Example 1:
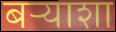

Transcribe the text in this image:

बऱ्याशा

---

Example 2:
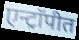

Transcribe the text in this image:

एन्ट्रॉपीत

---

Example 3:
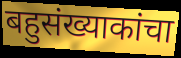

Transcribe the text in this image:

बहुसंख्याकांचा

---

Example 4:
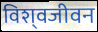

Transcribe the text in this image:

विश्वजीवन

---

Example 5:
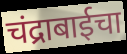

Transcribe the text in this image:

चंद्राबाईचा